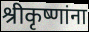
श्रीकृष्णांना